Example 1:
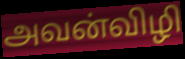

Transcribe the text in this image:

அவன்விழி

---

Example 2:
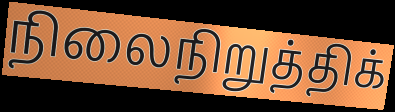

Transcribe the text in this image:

நிலைநிறுத்திக்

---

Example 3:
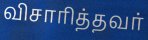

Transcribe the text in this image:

விசாரித்தவர்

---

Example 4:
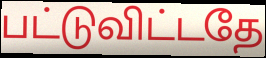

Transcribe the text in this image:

பட்டுவிட்டதே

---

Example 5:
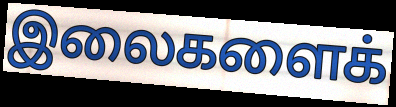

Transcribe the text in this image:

இலைகளைக்